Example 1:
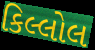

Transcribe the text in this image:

કિલ્લોલ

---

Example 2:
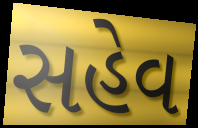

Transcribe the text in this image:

સહેવ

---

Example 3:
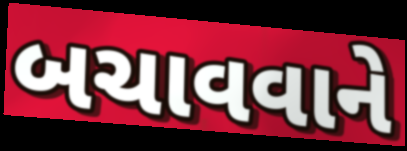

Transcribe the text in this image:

બચાવવાને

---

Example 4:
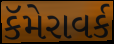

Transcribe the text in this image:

કૅમેરાવર્ક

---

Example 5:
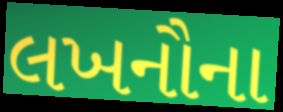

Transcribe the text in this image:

લખનૌના